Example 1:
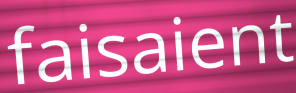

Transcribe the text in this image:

faisaient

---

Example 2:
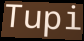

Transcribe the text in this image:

Tupi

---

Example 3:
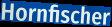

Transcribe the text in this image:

Hornfischer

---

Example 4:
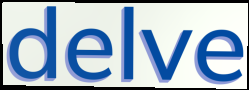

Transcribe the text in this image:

delve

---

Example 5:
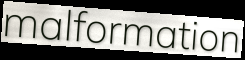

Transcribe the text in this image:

malformation